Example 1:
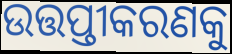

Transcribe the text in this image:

ଉତ୍ତପ୍ତୀକରଣକୁ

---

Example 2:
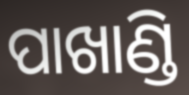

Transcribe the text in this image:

ପାଖାଣ୍ଡି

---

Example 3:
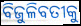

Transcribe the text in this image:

ବିଜୁଳିବତୀକୁ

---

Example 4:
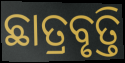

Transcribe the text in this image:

ଛାତ୍ରବୃତ୍ତି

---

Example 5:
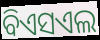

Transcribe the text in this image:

ବିଏସଏଲ